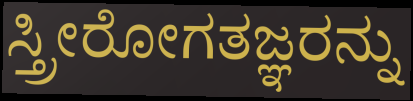
ಸ್ತ್ರೀರೋಗತಜ್ಞರನ್ನು